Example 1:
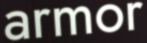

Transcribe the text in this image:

armor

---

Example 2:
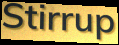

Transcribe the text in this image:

Stirrup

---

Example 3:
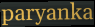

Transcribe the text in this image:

paryanka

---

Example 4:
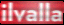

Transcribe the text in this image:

ilvalla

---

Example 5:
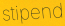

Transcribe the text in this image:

stipend